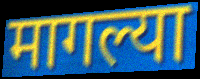
मागल्या